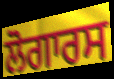
ਲੋਗਾਰਸ